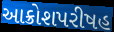
આક્રોશપરીષહ